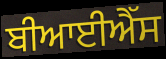
ਬੀਆਈਐੱਸ